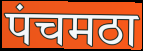
पंचमठा